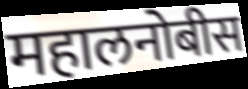
महालनोबीस